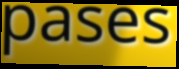
pases